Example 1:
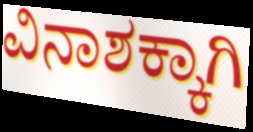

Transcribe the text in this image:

ವಿನಾಶಕ್ಕಾಗಿ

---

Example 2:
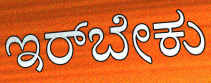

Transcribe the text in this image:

ಇರ್‌ಬೇಕು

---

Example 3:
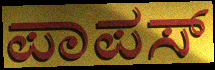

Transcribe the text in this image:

ಪಾಪಸ್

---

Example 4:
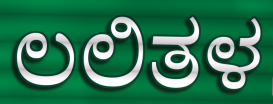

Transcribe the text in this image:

ಲಲಿತಳ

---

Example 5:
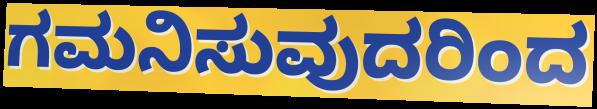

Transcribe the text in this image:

ಗಮನಿಸುವುದರಿಂದ